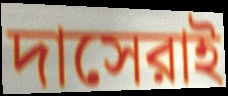
দাসেরাই